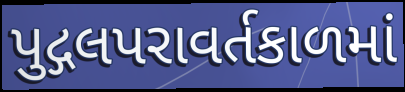
પુદ્ગલપરાવર્તકાળમાં